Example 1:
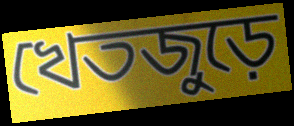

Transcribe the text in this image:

খেতজুড়ে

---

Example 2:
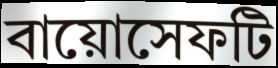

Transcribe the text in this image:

বায়োসেফটি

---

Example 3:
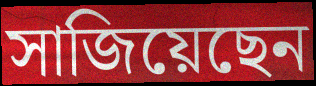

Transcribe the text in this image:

সাজিয়েছেন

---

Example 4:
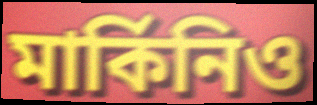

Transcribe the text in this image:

মার্কিনিও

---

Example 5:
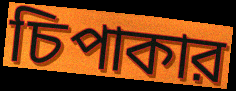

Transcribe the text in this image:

চিপাকার